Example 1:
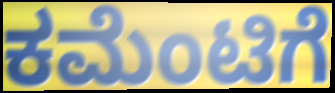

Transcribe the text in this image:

ಕಮೆಂಟಿಗೆ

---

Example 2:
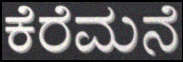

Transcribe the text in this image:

ಕೆರೆಮನೆ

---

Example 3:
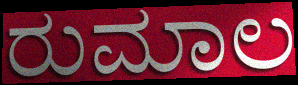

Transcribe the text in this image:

ರುಮಾಲ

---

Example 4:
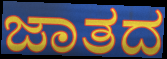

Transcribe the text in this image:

ಜಾತದ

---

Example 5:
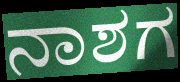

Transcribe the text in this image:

ನಾಶಗ